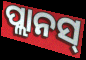
ପ୍ଲାନସ୍